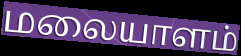
மலையாளம்